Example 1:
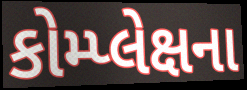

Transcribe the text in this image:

કોમ્પ્લેક્ષના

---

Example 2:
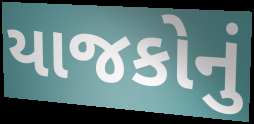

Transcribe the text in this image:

યાજકોનું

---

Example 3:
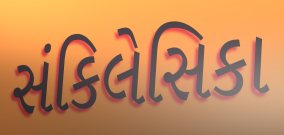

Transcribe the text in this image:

સંકિલેસિકા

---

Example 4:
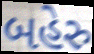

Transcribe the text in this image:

બહેરુ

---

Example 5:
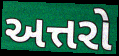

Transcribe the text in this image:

અત્તરો